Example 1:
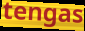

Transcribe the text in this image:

tengas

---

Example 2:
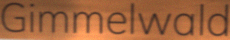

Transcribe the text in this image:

Gimmelwald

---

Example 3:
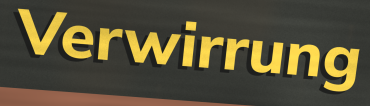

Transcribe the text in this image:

Verwirrung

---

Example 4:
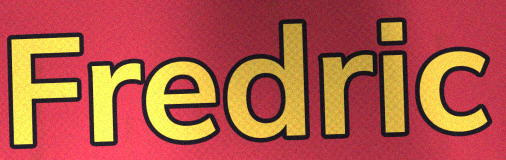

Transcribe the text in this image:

Fredric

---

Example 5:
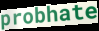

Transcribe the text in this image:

probhate